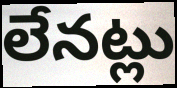
లేనట్లు